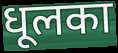
धूलका